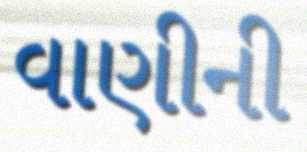
વાણીની